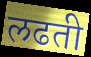
लढती